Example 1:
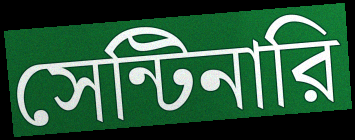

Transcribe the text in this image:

সেন্টিনারি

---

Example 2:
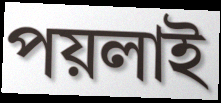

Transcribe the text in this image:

পয়লাই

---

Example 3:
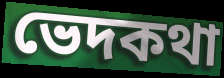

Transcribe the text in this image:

ভেদকথা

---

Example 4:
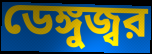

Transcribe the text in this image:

ডেঙ্গুজ্বর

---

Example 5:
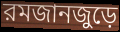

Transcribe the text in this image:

রমজানজুড়ে